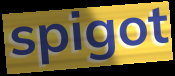
spigot